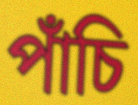
পাঁচি